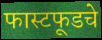
फास्टफूडचे